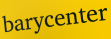
barycenter